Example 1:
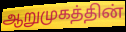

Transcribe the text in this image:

ஆறுமுகத்தின்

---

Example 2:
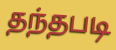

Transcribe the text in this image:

தந்தபடி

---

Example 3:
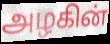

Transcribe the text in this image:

அழகின்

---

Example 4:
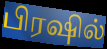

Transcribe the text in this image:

பிரஷில்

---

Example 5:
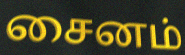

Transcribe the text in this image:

சைனம்